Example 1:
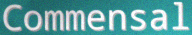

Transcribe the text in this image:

Commensal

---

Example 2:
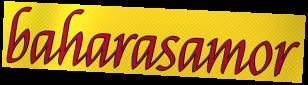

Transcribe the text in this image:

baharasamor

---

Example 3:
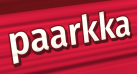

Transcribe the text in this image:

paarkka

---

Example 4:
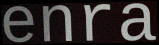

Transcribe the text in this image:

enra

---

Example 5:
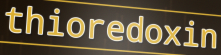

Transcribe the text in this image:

thioredoxin